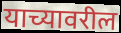
याच्यावरील